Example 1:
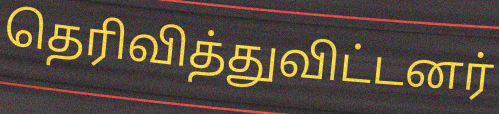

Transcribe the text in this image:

தெரிவித்துவிட்டனர்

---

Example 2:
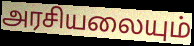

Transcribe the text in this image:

அரசியலையும்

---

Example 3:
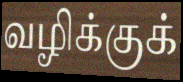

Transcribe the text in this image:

வழிக்குக்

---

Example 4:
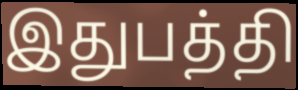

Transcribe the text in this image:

இதுபத்தி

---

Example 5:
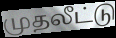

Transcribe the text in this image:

முதலீட்டு